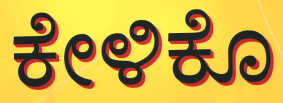
ಕೇಳಿಕೊ